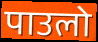
पाउलो